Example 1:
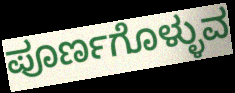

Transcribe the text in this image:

ಪೂರ್ಣಗೊಳ್ಳುವ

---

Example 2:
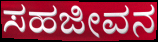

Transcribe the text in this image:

ಸಹಜೀವನ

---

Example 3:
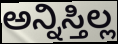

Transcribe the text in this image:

ಅನ್ನಿಸ್ತಿಲ್ಲ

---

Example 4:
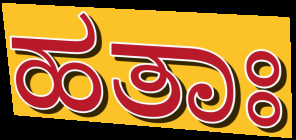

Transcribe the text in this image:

ಹತಾಃ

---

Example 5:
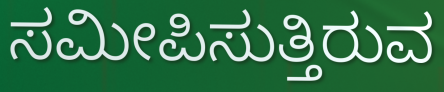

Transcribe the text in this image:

ಸಮೀಪಿಸುತ್ತಿರುವ